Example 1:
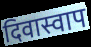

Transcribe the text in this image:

दिवास्वाप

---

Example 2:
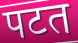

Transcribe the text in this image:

पटत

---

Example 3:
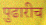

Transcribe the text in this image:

पुढारीच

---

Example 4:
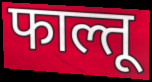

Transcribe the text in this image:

फाल्तू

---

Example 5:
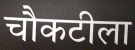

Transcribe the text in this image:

चौकटीला